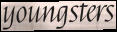
youngsters